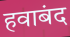
हवाबंद